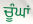
ਚੂੰਘਾਂ